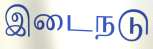
இடைநடு